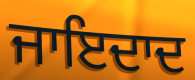
ਜਾਇਦਾਦ